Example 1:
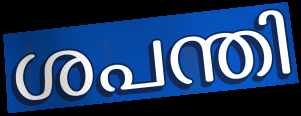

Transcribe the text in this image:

ശപന്തി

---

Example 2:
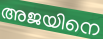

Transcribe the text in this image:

അജയിനെ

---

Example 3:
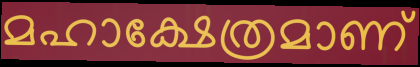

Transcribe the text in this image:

മഹാക്ഷേത്രമാണ്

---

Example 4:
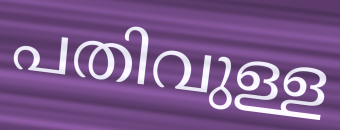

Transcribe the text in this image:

പതിവുള്ള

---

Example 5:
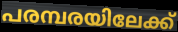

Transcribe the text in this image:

പരമ്പരയിലേക്ക്